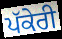
ਪੱਕੇਰੀ